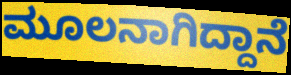
ಮೂಲನಾಗಿದ್ದಾನೆ